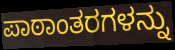
ಪಾಠಾಂತರಗಳನ್ನು